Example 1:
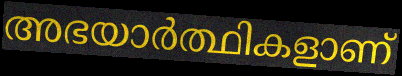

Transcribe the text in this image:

അഭയാർത്ഥികളാണ്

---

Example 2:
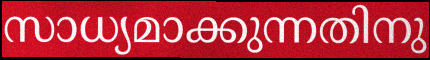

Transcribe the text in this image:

സാധ്യമാക്കുന്നതിനു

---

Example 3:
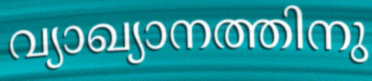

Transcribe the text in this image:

വ്യാഖ്യാനത്തിനു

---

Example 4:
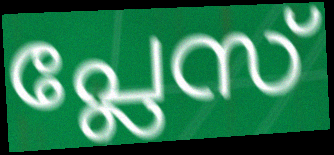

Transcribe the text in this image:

പ്ലേസ്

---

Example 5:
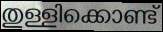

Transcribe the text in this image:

തുള്ളിക്കൊണ്ട്